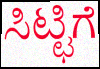
ಸಿಟ್ಟಿಗೆ